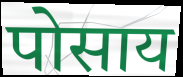
पोसाय